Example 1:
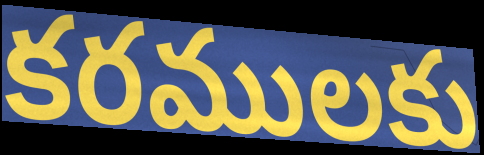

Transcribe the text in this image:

కరములకు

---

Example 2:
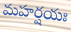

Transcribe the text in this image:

మహర్షయః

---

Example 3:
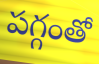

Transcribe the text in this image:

పగ్గంతో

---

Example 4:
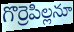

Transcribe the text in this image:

గొర్రెపిల్లనూ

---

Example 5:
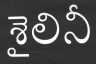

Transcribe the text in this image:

శైలినీ